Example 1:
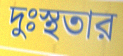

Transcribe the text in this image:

দুঃস্থতার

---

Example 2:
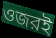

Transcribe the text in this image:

ওজরই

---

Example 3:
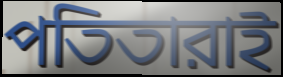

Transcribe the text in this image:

পতিতারাই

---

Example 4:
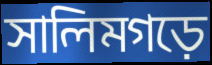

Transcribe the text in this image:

সালিমগড়ে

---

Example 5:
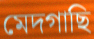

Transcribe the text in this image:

মেদগাছি